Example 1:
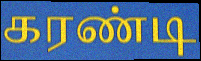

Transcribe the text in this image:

கரண்டி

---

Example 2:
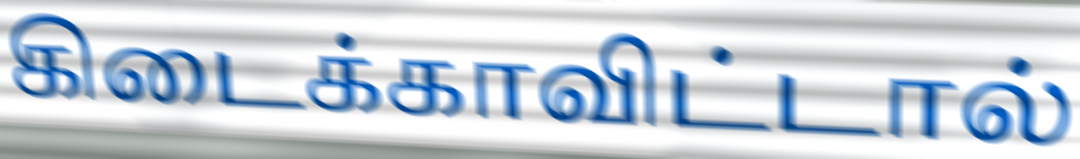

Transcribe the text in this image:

கிடைக்காவிட்டால்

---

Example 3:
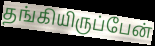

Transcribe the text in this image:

தங்கியிருப்பேன்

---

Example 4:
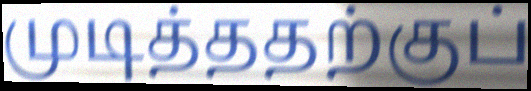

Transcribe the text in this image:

முடித்ததற்குப்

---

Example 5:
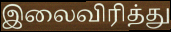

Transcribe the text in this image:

இலைவிரித்து